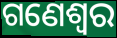
ଗଣେଶ୍ୱର